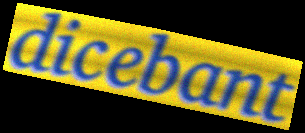
dicebant